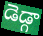
డెడ్గా